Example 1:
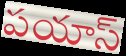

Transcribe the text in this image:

పయాస్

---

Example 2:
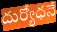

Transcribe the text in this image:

దుర్యోధనే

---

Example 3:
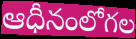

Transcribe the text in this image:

ఆధీనంలోగల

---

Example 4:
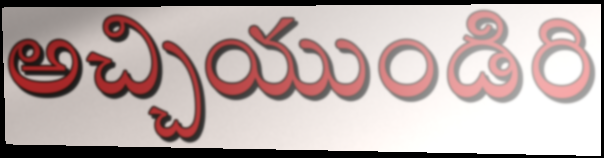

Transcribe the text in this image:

అచ్చియుండిరి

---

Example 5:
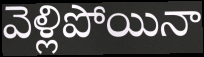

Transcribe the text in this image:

వెళ్లిపోయినా